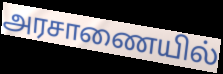
அரசாணையில்